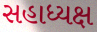
સહાધ્યક્ષ